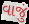
વાજું